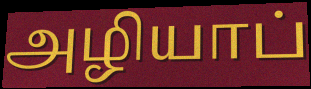
அழியாப்